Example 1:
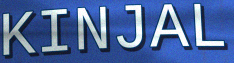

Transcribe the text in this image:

KINJAL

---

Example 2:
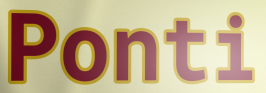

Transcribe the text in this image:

Ponti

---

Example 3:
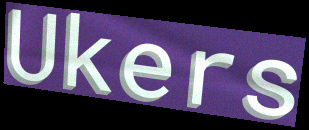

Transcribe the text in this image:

Ukers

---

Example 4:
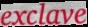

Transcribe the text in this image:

exclave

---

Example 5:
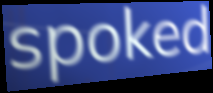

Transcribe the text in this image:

spoked